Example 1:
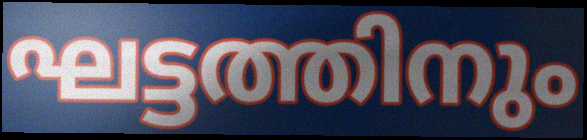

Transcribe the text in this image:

ഘട്ടത്തിനും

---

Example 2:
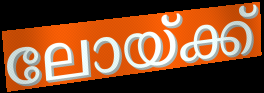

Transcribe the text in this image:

ലോയ്ക്ക്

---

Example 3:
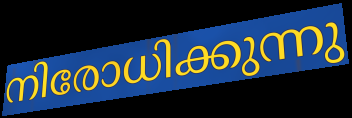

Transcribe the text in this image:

നിരോധിക്കുന്നു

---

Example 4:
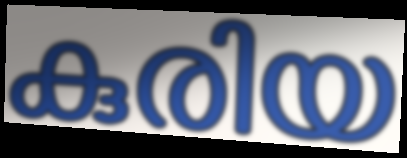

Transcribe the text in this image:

കുരിയ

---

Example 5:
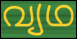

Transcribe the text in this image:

വ്യഥ